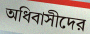
অধিবাসীদের